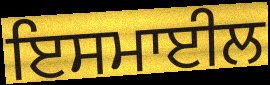
ਇਸਮਾਈਲ